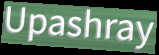
Upashray